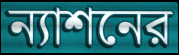
ন্যাশনের